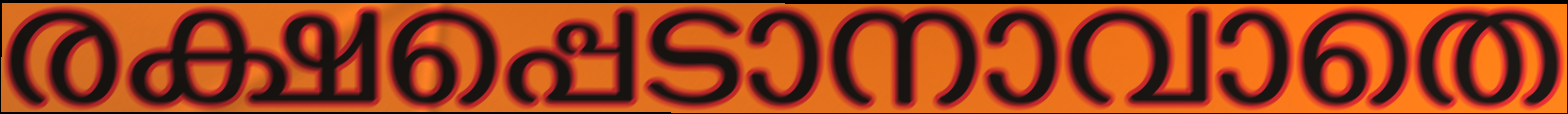
രക്ഷപ്പെടാനാവാതെ